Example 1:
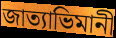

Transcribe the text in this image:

জাত্যাভিমানী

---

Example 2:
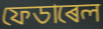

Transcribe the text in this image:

ফেডাৰেল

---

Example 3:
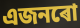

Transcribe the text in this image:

এজনৰো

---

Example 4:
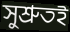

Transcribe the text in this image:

সুশ্ৰুতই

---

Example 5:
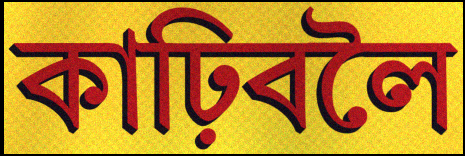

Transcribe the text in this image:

কাঢ়িবলৈ